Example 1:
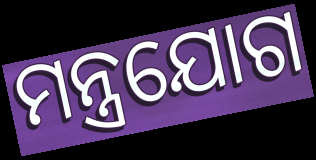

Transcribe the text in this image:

ମନ୍ତ୍ରଯୋଗ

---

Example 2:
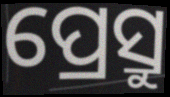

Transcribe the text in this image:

ପ୍ରେସ୍ରୁ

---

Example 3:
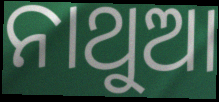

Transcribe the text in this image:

ନାଥୁଆ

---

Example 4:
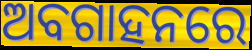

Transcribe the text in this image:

ଅବଗାହନରେ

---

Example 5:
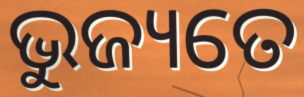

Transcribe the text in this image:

ଭୁଜ୍ୟତେ